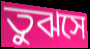
তুঝসে